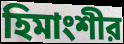
হিমাংশীর